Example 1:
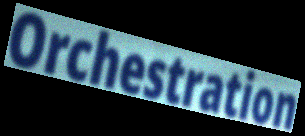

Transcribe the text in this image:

Orchestration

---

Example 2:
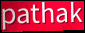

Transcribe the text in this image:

pathak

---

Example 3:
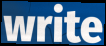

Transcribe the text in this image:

write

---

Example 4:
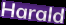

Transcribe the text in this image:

Harald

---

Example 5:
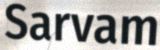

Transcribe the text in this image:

Sarvam